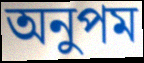
অনুপম